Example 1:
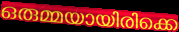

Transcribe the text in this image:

ഒരുമ്മയായിരിക്കെ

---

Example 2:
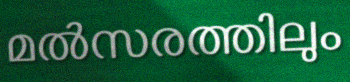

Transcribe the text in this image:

മൽസരത്തിലും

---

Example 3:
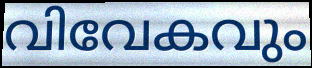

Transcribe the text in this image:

വിവേകവും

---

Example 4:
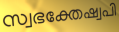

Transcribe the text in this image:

സ്വഭക്തേഷ്വപി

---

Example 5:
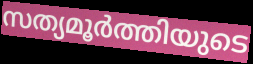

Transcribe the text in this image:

സത്യമൂർത്തിയുടെ